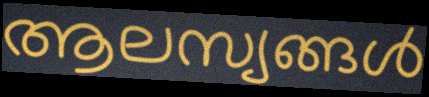
ആലസ്യങ്ങൾ